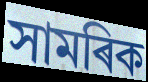
সামৰিক